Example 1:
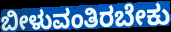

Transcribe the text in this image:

ಬೀಳುವಂತಿರಬೇಕು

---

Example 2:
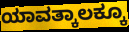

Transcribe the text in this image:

ಯಾವತ್ಕಾಲಕ್ಕೂ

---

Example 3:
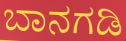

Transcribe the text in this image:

ಬಾನಗಡಿ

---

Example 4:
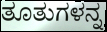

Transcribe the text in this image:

ತೂತುಗಳನ್ನ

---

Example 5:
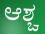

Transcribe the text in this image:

ಆಶ್ಚ